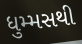
ધુમ્મસથી